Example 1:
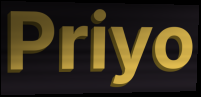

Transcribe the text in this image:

Priyo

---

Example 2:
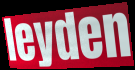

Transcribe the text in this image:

Ieyden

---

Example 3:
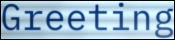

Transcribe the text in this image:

Greeting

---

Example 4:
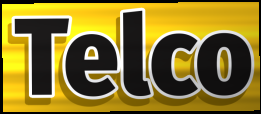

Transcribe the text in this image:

Telco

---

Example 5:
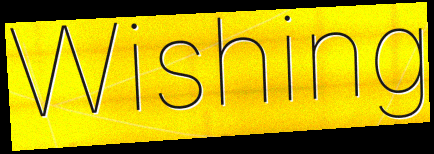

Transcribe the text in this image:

Wishing